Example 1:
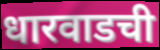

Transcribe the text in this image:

धारवाडची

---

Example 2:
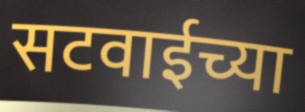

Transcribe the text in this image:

सटवाईच्या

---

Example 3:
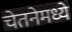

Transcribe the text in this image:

चेतनेमध्ये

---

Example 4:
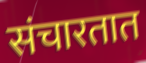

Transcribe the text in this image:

संचारतात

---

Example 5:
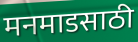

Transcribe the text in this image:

मनमाडसाठी